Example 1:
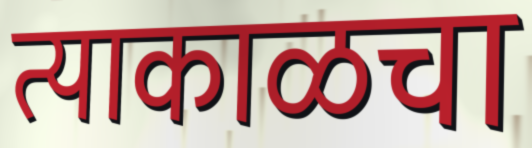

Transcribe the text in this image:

त्याकाळचा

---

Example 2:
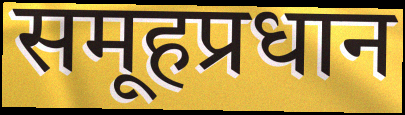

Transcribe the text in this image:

समूहप्रधान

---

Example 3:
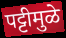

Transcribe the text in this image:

पट्टीमुळे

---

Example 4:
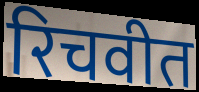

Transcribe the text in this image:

रिचवीत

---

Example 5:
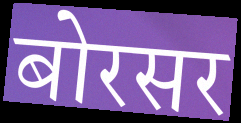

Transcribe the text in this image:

बोरसर